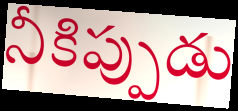
నీకిప్పుడు